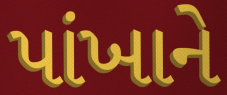
પાંખાને